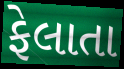
ફેલાતા